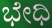
ಭೇಧಿ